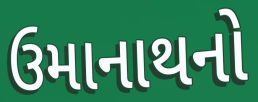
ઉમાનાથનો